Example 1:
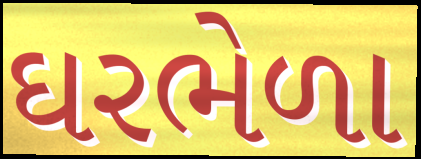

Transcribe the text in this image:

ઘરભેળા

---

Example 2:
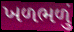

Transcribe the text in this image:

ખળભળું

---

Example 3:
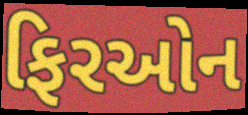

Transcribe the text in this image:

ફિરઓન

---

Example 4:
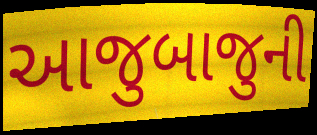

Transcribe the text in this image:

આજુબાજુની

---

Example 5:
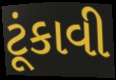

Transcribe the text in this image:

ટૂંકાવી